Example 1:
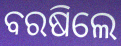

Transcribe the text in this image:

ବରଷିଲେ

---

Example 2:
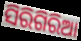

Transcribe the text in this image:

ସିରିଗିରିଆ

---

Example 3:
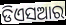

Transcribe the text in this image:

ଡିଏସଆର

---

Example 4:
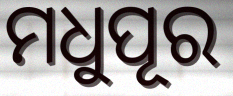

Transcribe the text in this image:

ମଧୁପୂର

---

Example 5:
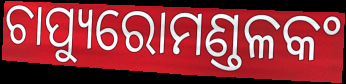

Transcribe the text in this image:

ଚାପ୍ୟୁରୋମଣ୍ଡଳକଂ